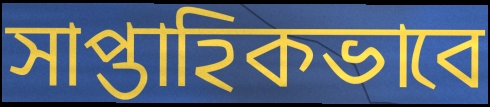
সাপ্তাহিকভাবে